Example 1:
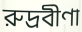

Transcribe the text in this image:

রুদ্রবীণা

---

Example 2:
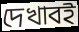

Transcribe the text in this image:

দেখাবই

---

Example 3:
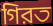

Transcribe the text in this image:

গিরত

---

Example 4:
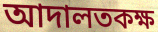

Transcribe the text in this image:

আদালতকক্ষ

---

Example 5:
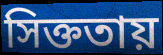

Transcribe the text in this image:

সিক্ততায়